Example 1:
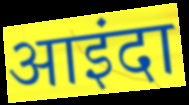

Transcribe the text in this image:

आइंदा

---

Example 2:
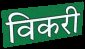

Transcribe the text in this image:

विकरी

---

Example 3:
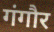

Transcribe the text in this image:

गंगौर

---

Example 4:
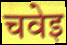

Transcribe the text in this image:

चवेइ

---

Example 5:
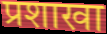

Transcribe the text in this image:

प्रशाखा